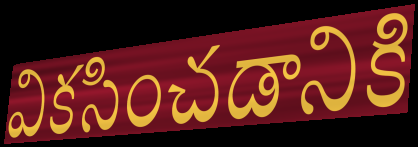
వికసించడానికి